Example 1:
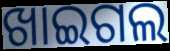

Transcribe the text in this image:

ଖାଇଗଲ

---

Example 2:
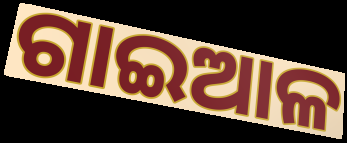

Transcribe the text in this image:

ଗାଇଆଳ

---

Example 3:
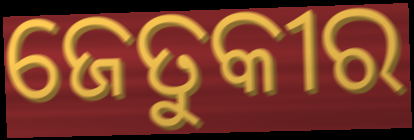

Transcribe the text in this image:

ଜେତୁକୀର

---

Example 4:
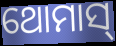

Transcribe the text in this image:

ଥୋମାସ୍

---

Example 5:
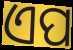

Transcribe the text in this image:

ଏପ